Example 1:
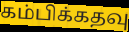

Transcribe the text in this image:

கம்பிக்கதவு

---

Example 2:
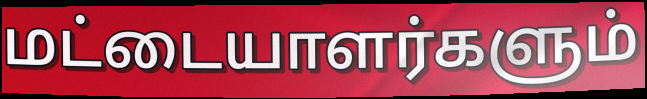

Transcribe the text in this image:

மட்டையாளர்களும்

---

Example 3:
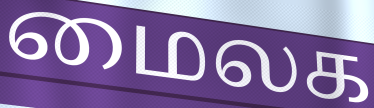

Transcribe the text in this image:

மைலக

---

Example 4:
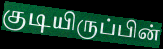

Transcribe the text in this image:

குடியிருப்பின்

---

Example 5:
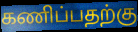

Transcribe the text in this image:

கணிப்பதற்கு